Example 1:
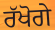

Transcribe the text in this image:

ਰੱਖੋਗੇ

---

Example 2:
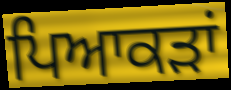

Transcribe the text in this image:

ਪਿਆਕੜਾਂ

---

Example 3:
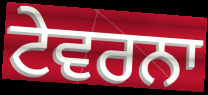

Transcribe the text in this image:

ਟੇਵਰਨਾ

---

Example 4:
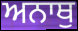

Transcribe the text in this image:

ਅਨਾਥੁ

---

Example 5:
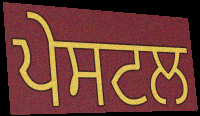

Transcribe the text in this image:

ਪੇਸਟਲ